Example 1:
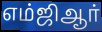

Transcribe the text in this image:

எம்ஜிஆர்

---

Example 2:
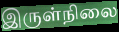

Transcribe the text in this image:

இருள்நிலை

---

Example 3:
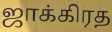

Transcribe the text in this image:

ஜாக்கிரத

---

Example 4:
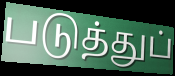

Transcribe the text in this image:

படுத்துப்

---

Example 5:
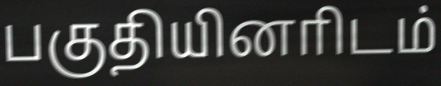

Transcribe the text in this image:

பகுதியினரிடம்